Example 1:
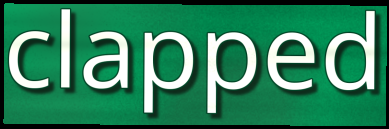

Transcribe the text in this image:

clapped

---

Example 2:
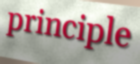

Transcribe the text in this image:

principle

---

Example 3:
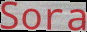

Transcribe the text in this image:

Sora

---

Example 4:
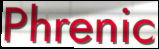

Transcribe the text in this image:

Phrenic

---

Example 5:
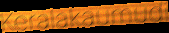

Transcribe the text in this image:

Keralakaumudi